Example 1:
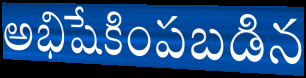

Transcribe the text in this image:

అభిషేకింపబడిన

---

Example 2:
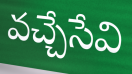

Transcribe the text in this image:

వచ్చేసేవి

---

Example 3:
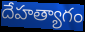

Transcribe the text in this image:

దేహత్యాగం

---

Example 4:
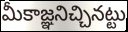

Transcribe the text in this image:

మీకాజ్ఞనిచ్చినట్టు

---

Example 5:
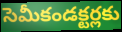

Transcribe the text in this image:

సెమీకండక్టర్లకు